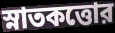
স্নাতকত্তোর